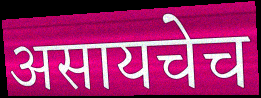
असायचेच